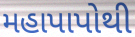
મહાપાપોથી